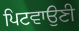
ਪਿਟਵਾਉਣੀ